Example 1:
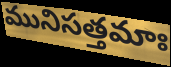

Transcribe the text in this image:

మునిసత్తమాః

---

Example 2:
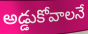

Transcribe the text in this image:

అడ్డుకోవాలనే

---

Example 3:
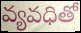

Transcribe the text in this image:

వ్యవధితో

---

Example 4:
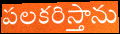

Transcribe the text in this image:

పలకరిస్తాను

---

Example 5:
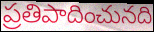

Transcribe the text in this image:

ప్రతిపాదించునది